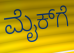
ಮೈಕ್‌ಗೆ